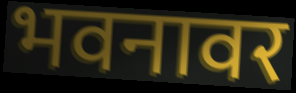
भवनावर